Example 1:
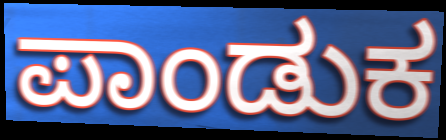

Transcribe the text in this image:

ಪಾಂಡುಕ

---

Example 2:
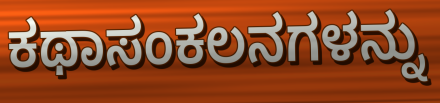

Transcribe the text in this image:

ಕಥಾಸಂಕಲನಗಳನ್ನು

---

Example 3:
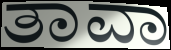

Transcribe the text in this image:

ತಾವಾ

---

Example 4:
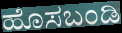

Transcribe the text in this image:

ಹೊಸಬಂಡಿ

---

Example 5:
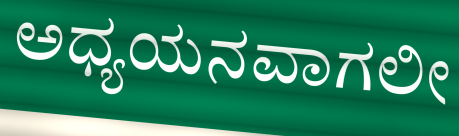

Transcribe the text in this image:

ಅಧ್ಯಯನವಾಗಲೀ